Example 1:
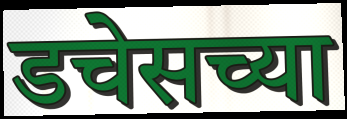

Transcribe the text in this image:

डचेसच्या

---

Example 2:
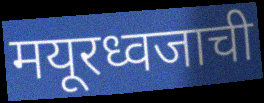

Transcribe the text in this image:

मयूरध्वजाची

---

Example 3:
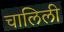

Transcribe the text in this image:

चालिली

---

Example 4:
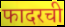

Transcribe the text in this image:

फादरची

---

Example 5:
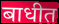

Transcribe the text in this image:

बाधीत